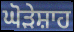
ਘੋੜੇਸ਼ਾਹ